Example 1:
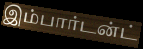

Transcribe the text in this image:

இம்பார்டன்ட்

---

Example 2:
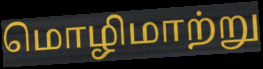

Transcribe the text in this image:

மொழிமாற்று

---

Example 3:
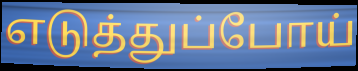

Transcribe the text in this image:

எடுத்துப்போய்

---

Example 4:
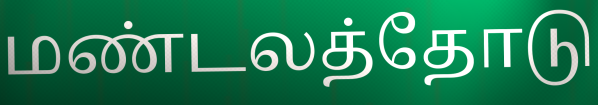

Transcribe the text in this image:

மண்டலத்தோடு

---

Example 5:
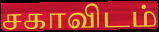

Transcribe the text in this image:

சகாவிடம்